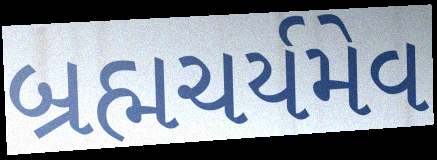
બ્રહ્મચર્યમેવ